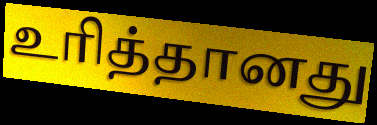
உரித்தானது